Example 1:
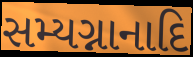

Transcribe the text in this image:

સમ્યગ્નાનાદિ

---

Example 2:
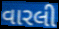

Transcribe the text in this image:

વારલી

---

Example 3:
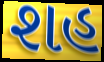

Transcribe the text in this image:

શહ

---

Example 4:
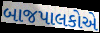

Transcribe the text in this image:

બાજપાલકોએ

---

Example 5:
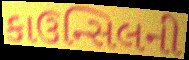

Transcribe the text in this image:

કાઉન્સિલની